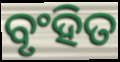
ବୃଂହିତ